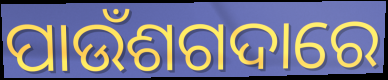
ପାଉଁଶଗଦାରେ